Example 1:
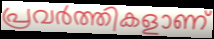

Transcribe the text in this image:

പ്രവർത്തികളാണ്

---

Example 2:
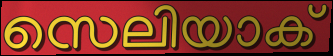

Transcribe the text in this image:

സെലിയാക്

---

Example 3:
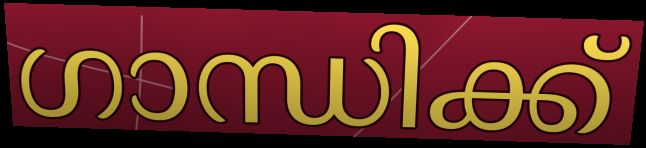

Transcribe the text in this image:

ഗാന്ധിക്ക്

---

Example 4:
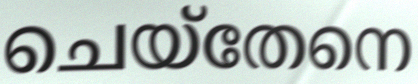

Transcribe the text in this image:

ചെയ്തേനെ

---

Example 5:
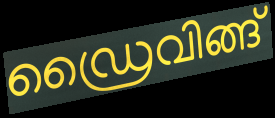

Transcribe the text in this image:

ഡ്രൈവിങ്ങ്